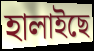
হালাইছে